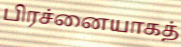
பிரச்னையாகத்